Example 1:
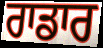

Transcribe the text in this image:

ਰਾਡਾਰ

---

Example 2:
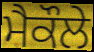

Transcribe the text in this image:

ਮੈਕੌਲੇ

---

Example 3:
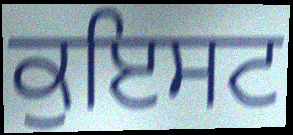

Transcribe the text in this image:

ਕੁਇਸਟ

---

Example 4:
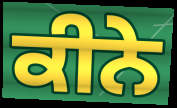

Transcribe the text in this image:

ਕੀਨੇ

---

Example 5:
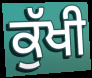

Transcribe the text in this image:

ਕੁੱਖੀ